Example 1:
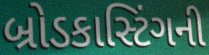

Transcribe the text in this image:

બ્રોડકાસ્ટિંગની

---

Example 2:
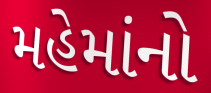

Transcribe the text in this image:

મહેમાંનો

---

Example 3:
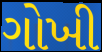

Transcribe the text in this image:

ગોખી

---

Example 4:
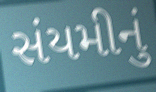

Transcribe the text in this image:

સંયમીનું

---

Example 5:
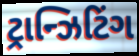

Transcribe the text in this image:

ટ્રાન્ઝિટિંગ